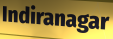
Indiranagar